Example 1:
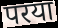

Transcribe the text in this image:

परया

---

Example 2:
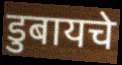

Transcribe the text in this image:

डुबायचे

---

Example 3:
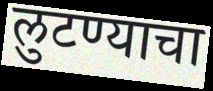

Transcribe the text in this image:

लुटण्याचा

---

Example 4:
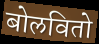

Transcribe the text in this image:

बोलवितो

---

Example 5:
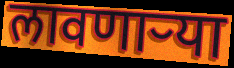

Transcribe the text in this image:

लावणाऱ्या